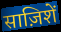
साज़िशें